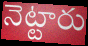
నెట్టారు